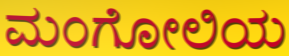
ಮಂಗೋಲಿಯ